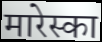
मारेस्का